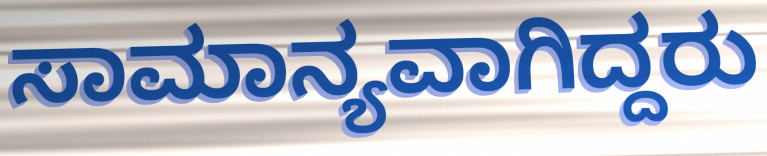
ಸಾಮಾನ್ಯವಾಗಿದ್ದರು